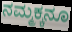
ನಮ್ಮಕ್ಕನೂ